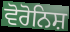
ਵੋਰੋਨਿਸ਼